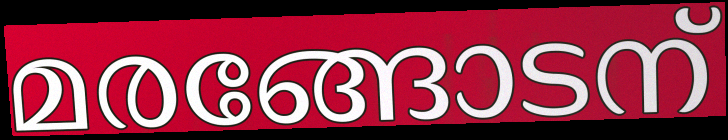
മരങ്ങോടന്